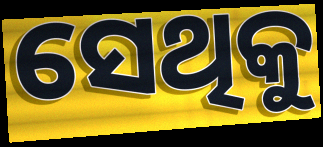
ସେଥିକୁ